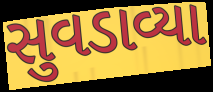
સુવડાવ્યા